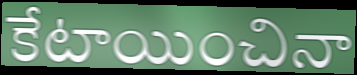
కేటాయించినా